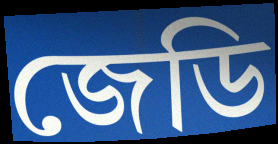
জেডি